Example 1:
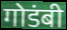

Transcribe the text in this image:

गोडंबी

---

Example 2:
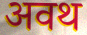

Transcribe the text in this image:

अवथ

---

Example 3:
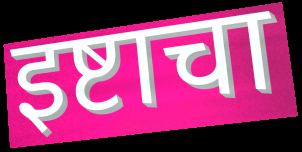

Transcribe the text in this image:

इष्टाचा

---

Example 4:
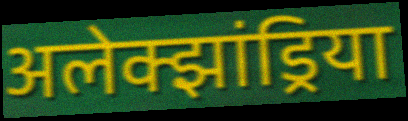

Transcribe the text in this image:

अलेक्झांड्रिया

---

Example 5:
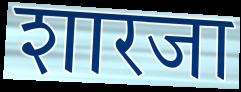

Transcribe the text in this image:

शारजा